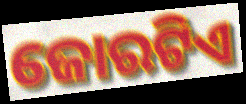
ଜୋରଟିଏ